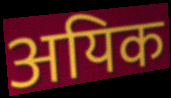
अयिक